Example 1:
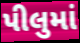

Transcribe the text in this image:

પીલુમાં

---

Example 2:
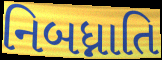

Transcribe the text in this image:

નિબધ્નાતિ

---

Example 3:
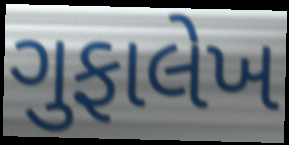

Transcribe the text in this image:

ગુફાલેખ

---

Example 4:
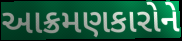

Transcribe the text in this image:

આક્રમણકારોને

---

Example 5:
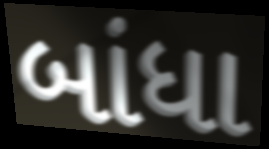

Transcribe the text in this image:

બાંધા